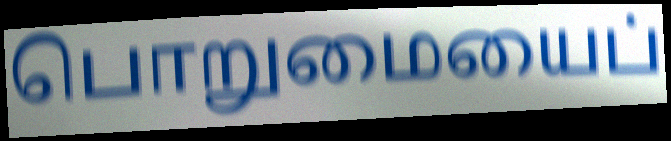
பொறுமையைப்